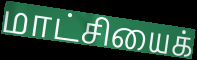
மாட்சியைக்